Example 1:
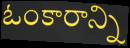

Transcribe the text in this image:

ఓంకారాన్ని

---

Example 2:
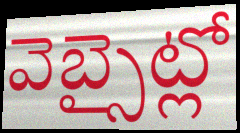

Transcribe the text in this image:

వెబ్సైట్లో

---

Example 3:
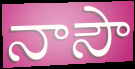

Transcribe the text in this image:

నాసౌ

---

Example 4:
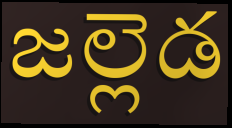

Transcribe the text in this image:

జల్లెడ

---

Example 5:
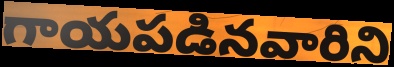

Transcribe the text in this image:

గాయపడినవారిని